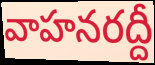
వాహనరద్దీ